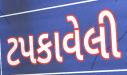
ટપકાવેલી